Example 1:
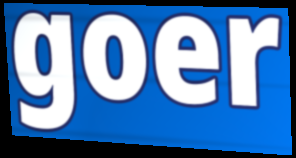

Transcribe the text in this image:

goer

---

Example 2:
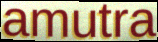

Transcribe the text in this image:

amutra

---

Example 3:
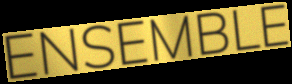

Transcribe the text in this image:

ENSEMBLE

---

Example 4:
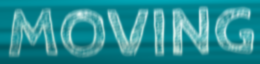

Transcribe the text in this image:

MOVING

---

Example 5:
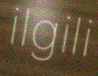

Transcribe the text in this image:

ilgili